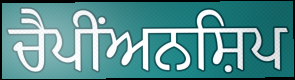
ਚੈਪੀਂਅਨਸ਼ਿਪ